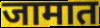
जामात